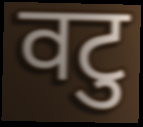
वटु